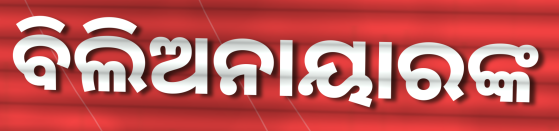
ବିଲିଅନାୟାରଙ୍କ